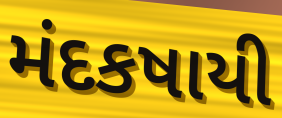
મંદકષાયી